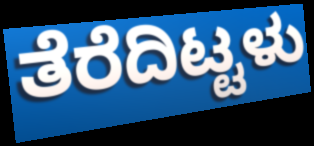
ತೆರೆದಿಟ್ಟಳು